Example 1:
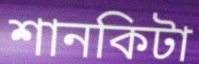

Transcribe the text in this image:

শানকিটা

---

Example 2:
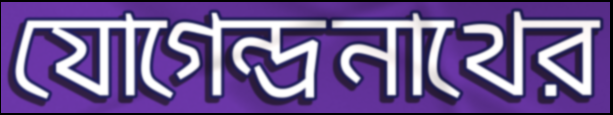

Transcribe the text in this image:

যোগেন্দ্রনাথের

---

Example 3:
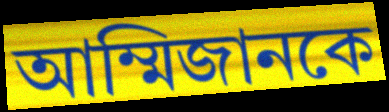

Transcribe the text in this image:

আম্মিজানকে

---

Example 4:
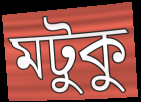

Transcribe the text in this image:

মটুকু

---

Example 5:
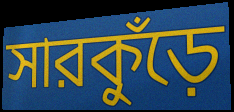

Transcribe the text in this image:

সারকুঁড়ে